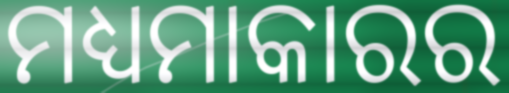
ମଧ୍ୟମାକାରର